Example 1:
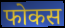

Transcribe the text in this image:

फोकस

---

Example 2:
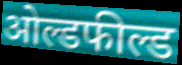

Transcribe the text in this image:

ओल्डफील्ड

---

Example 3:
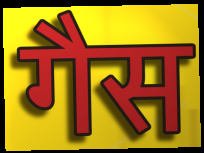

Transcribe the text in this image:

गैस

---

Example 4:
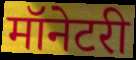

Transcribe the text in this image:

मॉनेटरी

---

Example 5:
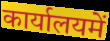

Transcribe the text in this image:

कार्यालयमें